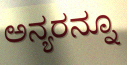
ಅನ್ಯರನ್ನೂ